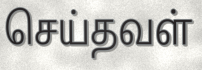
செய்தவள்